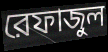
রেফাজুল